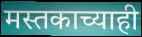
मस्तकाच्याही